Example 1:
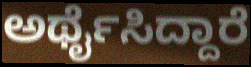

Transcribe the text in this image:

ಅರ್ಥೈಸಿದ್ದಾರೆ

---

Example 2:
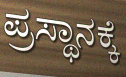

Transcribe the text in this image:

ಪ್ರಸ್ಥಾನಕ್ಕೆ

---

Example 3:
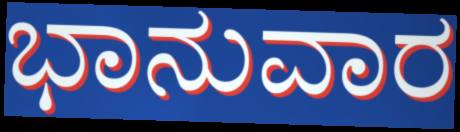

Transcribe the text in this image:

ಭಾನುವಾರ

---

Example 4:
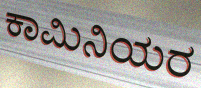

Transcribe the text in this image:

ಕಾಮಿನಿಯರ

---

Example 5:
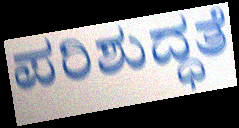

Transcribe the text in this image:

ಪರಿಶುದ್ಧತೆ